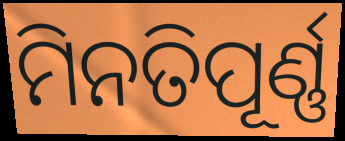
ମିନତିପୂର୍ଣ୍ଣ